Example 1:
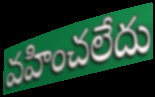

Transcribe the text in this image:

వహించలేదు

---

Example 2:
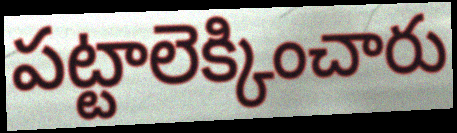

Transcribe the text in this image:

పట్టాలెక్కించారు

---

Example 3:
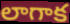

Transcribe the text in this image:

లాగాక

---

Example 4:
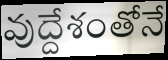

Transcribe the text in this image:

వుద్దేశంతోనే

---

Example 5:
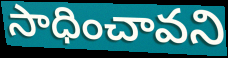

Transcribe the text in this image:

సాధించావని